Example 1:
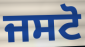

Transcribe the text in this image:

ਜਸਟੋ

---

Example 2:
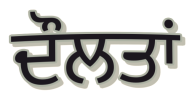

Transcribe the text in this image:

ਦੌਲਤਾਂ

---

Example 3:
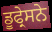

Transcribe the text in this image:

ਡੂਫ੍ਰੇਸਨੇ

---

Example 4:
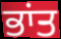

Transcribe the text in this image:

ਭਾਂਤ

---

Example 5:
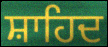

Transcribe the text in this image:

ਸ਼ਾਹਿਦ